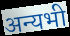
अन्यभी